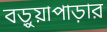
বড়ুয়াপাড়ার